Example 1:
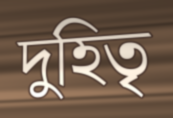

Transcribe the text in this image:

দুহিতৃ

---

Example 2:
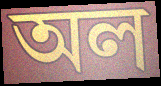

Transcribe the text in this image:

অল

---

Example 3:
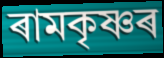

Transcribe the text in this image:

ৰামকৃষ্ণৰ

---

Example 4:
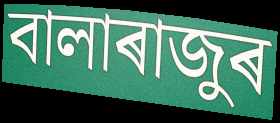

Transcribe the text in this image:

বালাৰাজুৰ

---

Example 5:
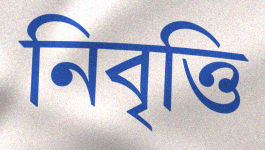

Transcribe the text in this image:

নিবৃত্তি